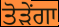
ਤੋੜੇਂਗਾ